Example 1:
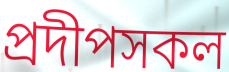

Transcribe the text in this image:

প্রদীপসকল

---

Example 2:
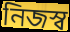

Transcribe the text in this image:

নিজস্ব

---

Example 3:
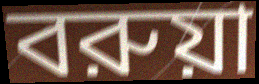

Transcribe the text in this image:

বরুয়া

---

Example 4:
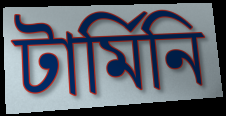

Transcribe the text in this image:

টার্মিনি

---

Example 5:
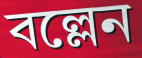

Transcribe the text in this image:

বল্লেন